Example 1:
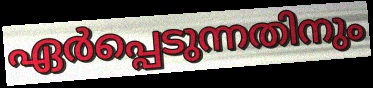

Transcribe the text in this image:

ഏർപ്പെടുന്നതിനും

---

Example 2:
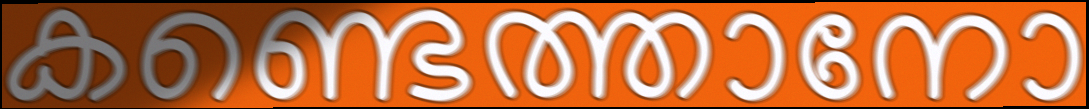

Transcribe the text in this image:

കണ്ടെത്താനോ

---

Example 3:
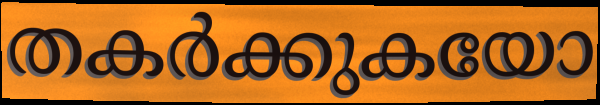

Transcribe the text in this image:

തകർക്കുകയോ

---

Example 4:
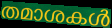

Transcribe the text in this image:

തമാശകൾ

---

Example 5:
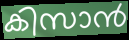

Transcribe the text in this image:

കിസാൻ